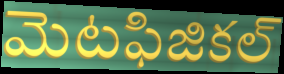
మెటఫిజికల్